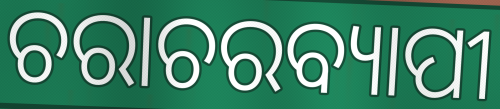
ଚରାଚରବ୍ୟାପୀ